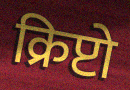
क्रिप्टो